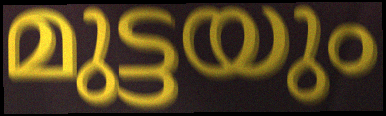
മുട്ടയും